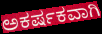
ಅಕರ್ಷಕವಾಗಿ